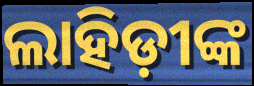
ଲାହିଡ଼ୀଙ୍କ